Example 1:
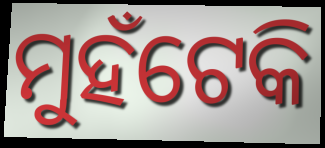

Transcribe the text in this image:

ମୁହଁଟେକି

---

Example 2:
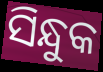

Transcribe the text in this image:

ସିନ୍ଧୁକ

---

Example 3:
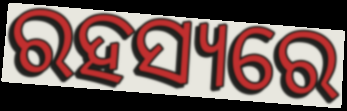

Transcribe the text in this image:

ରହସ୍ୟରେ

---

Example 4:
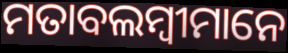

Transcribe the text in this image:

ମତାବଲମ୍ବୀମାନେ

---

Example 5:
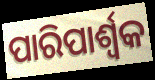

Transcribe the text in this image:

ପାରିପାର୍ଶ୍ବକ